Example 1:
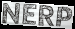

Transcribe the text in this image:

NERP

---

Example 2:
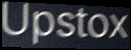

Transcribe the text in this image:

Upstox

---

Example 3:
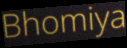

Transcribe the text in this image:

Bhomiya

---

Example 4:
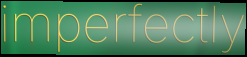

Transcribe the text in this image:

imperfectly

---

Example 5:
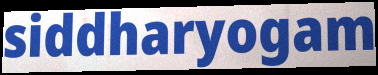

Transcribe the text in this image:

siddharyogam